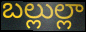
బల్లుల్లా